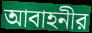
আবাহনীর